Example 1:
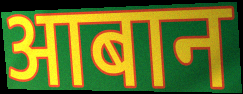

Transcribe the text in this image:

आबान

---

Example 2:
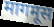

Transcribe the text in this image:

मागमूस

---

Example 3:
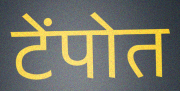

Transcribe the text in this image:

टेंपोत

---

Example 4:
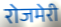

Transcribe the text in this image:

रोजमेरी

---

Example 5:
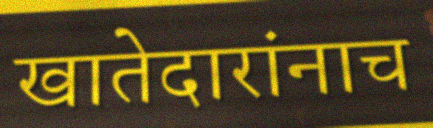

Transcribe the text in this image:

खातेदारांनाच